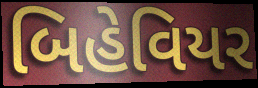
બિહેવિયર